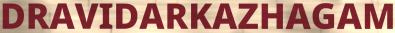
DRAVIDARKAZHAGAM